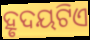
ହୃଦୟଟିଏ